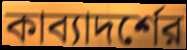
কাব্যাদর্শের